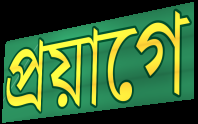
প্রয়াগে